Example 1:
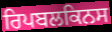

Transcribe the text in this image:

ਰਿਪਬਲਕਿਨਸ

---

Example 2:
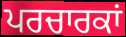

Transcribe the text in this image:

ਪਰਚਾਰਕਾਂ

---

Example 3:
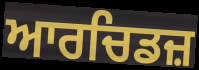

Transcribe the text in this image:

ਆਰਚਿਡਜ਼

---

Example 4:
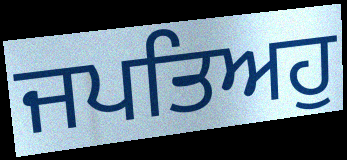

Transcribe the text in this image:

ਜਪਤਿਅਹੁ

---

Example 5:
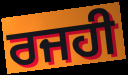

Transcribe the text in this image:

ਰਜਹੀ